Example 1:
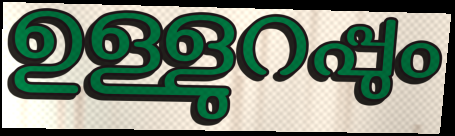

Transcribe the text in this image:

ഉള്ളുറപ്പും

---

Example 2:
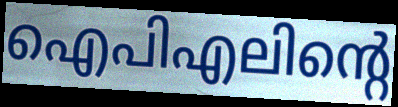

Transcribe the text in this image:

ഐപിഎലിന്റെ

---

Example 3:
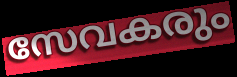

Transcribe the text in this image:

സേവകരും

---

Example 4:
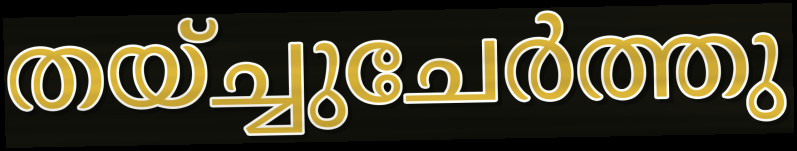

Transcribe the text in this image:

തയ്ച്ചുചേർത്തു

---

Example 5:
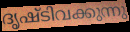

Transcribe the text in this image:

ദൃഷ്ടിവക്കുന്നു